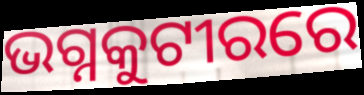
ଭଗ୍ନକୁଟୀରରେ